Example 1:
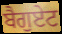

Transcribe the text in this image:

ਬੈਗੁਏਟ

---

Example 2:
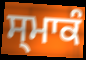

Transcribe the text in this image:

ਸ੍ਮਾਕੰ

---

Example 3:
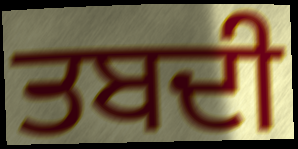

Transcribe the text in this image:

ਤਬਦੀ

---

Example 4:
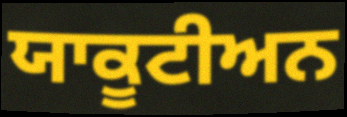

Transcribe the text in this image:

ਯਾਕੂਟੀਅਨ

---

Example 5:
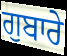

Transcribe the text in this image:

ਗੁਬਾਰੇ